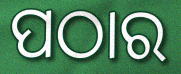
ପଠାର